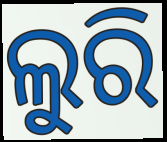
ଲୁରି